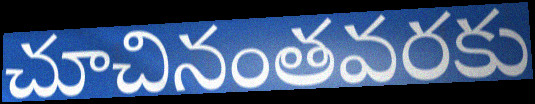
చూచినంతవరకు